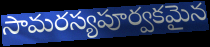
సామరస్యపూర్వకమైన